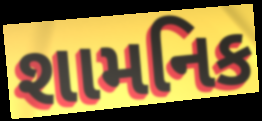
શામનિક